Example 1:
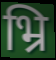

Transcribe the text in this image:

भ्रि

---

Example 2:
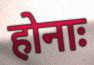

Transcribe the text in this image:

होनाः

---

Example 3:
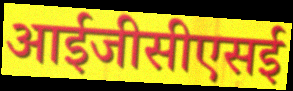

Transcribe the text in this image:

आईजीसीएसई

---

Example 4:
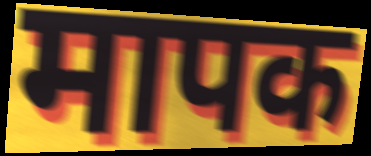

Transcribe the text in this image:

मापक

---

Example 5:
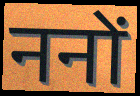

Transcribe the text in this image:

ननों